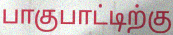
பாகுபாட்டிற்கு